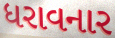
ધરાવનાર